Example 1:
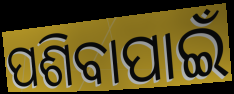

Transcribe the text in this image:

ପଶିବାପାଇଁ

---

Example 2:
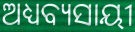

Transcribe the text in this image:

ଅଧ୍ୟବ୍ୟସାୟୀ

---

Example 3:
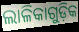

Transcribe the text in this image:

ଲାଳିକାଗୁଡ଼ିକ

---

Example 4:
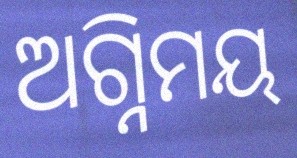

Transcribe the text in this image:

ଅଗ୍ନିମୟ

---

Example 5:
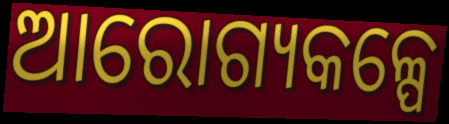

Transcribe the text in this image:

ଆରୋଗ୍ୟକଳ୍ପେ